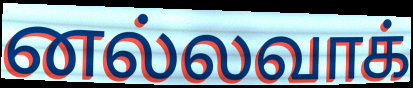
னல்லவாக்